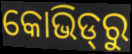
କୋଭିଡ୍‌ରୁ